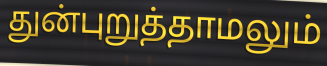
துன்புறுத்தாமலும்